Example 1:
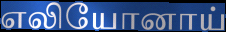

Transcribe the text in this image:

எலியோனாய்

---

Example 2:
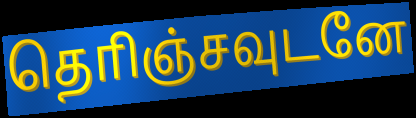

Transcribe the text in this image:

தெரிஞ்சவுடனே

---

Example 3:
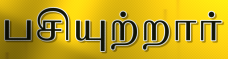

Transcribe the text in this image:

பசியுற்றார்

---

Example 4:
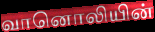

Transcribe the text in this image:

வானொலியின்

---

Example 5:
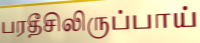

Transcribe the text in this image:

பரதீசிலிருப்பாய்